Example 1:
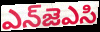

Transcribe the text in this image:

ఎన్‌జెఎసి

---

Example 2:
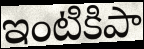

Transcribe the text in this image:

ఇంటికిపా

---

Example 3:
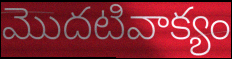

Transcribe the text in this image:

మొదటివాక్యం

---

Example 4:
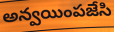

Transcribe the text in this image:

అన్వయింపజేసి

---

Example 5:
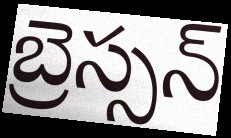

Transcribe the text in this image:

బ్రెస్సన్